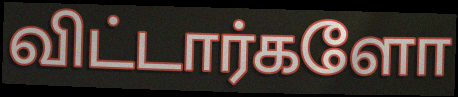
விட்டார்களோ